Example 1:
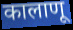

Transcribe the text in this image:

कालाणू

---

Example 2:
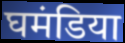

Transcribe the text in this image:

घमंडिया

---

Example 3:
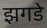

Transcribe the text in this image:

झगडे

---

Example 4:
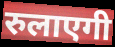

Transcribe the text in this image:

रुलाएगी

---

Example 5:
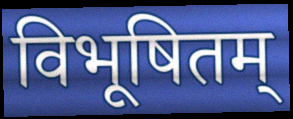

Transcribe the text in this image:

विभूषितम्